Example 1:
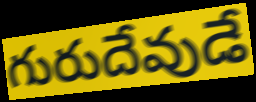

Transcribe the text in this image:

గురుదేవుడే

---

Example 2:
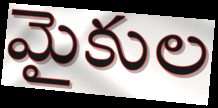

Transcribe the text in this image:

మైకుల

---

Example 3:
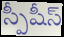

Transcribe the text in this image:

స్పీషీస్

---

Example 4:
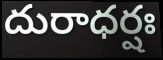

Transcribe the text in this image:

దురాధర్షః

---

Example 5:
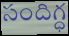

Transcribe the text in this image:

సందిగ్ధ